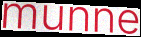
munne